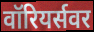
वॉरियर्सवर